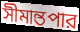
সীমান্তপার